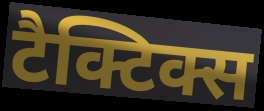
टैक्टिक्स